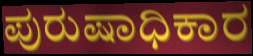
ಪುರುಷಾಧಿಕಾರ